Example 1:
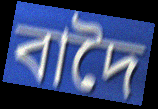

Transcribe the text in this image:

বাদৈ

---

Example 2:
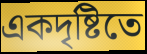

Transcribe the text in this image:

একদৃষ্টিতে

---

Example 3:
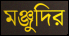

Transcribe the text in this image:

মঞ্জুদির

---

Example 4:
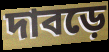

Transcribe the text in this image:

দাবড়ে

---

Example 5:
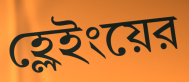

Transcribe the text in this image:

হ্লেইংয়ের